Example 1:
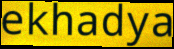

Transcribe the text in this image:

ekhadya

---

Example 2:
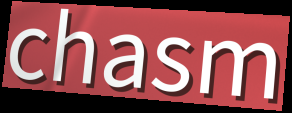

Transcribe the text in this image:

chasm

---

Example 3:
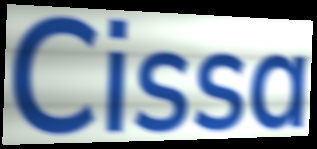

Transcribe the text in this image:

Cissa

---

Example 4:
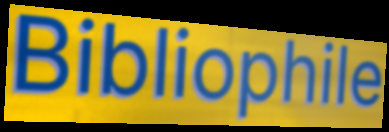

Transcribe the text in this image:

Bibliophile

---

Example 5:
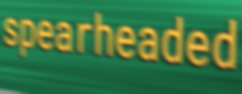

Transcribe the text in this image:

spearheaded